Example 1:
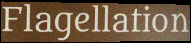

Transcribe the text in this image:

Flagellation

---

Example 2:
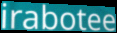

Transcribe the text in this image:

irabotee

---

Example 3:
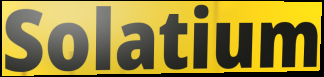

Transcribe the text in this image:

Solatium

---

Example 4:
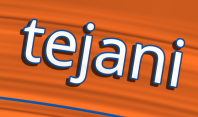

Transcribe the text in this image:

tejani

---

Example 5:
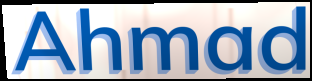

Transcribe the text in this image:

Ahmad